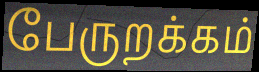
பேருறக்கம்